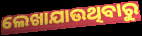
ଲେଖାଯାଉଥିବାରୁ